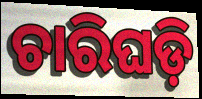
ଚାରିଘଡ଼ି